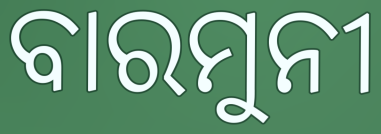
ବାରମୁନୀ